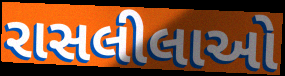
રાસલીલાઓ